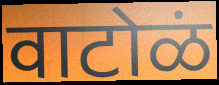
वाटोळं